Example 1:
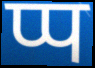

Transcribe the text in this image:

प्प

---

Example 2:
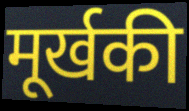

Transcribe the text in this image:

मूर्खकी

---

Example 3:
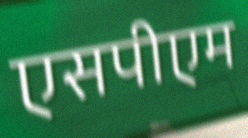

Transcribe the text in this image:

एसपीएम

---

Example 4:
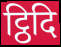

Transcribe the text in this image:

ट्ठिदि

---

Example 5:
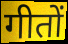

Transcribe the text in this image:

गीतों